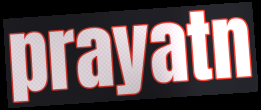
prayatn